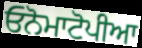
ਓਨੋਮਾਟੋਪੀਆ